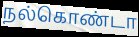
நல்கொண்டா